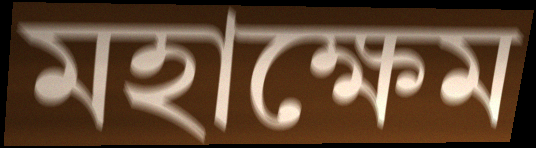
মহাক্ষেম